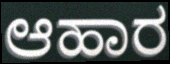
ಆಹಾರ